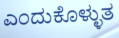
ಎಂದುಕೊಳ್ಳುತ